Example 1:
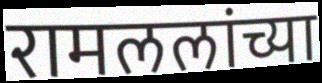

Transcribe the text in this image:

रामललांच्या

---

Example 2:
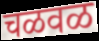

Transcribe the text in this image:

चळवळ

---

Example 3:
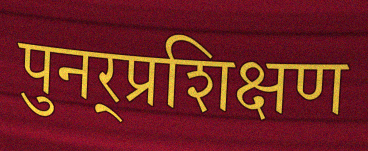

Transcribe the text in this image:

पुनर्प्रशिक्षण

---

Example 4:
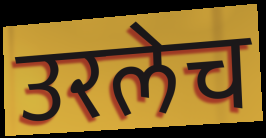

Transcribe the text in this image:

उरलेच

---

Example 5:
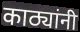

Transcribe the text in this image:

काठ्यांनी